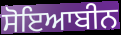
ਸੋਇਆਬੀਨ